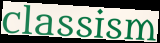
classism